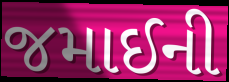
જમાઈની